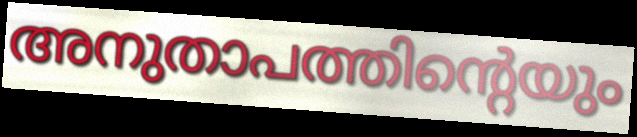
അനുതാപത്തിന്റെയും